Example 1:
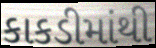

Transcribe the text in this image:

કાકડીમાંથી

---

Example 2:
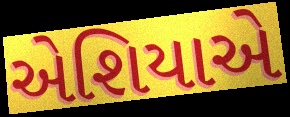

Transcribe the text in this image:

એશિયાએ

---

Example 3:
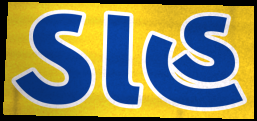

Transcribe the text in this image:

ડાહ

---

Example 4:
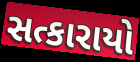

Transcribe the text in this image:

સત્કારાયો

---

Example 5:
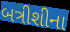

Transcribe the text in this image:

બત્રીશીના